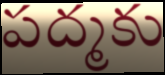
పద్మకు